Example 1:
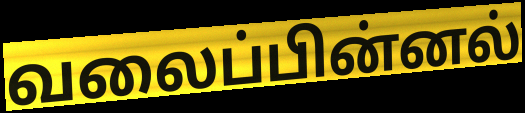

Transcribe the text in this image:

வலைப்பின்னல்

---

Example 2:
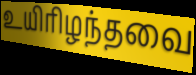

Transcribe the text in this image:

உயிரிழந்தவை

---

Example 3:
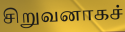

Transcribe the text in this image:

சிறுவனாகச்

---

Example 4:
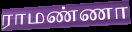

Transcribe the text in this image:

ராமண்ணா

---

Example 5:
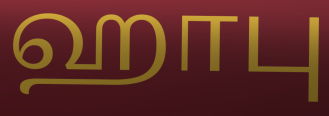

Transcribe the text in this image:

ஹாபு